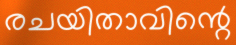
രചയിതാവിന്റെ